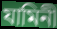
যামিনী